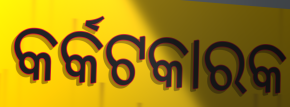
କର୍କଟକାରକ